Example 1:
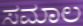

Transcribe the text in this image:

ಸಮಾಲ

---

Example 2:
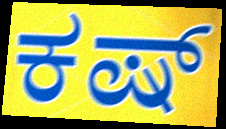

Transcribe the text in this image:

ಕಷ್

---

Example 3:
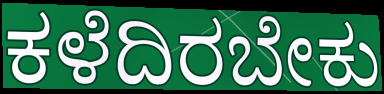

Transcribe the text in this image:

ಕಳೆದಿರಬೇಕು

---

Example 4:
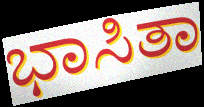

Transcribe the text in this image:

ಭಾಸಿತಾ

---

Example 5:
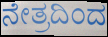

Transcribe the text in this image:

ನೇತ್ರದಿಂದ